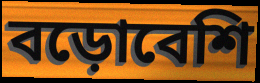
বড়োবেশি